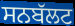
ਸਨਬੱਲਟ